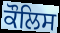
ਕੌਲਿਸ